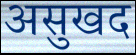
असुखद